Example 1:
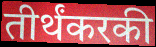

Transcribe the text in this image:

तीर्थंकरकी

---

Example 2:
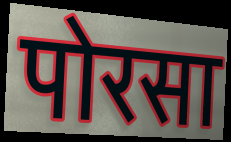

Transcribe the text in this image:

पोरसा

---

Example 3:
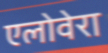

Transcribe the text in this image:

एलोवेरा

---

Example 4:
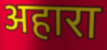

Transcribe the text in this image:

अहारा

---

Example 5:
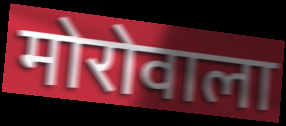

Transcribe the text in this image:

मोरोवाला